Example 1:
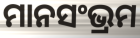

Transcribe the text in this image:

ମାନସଂଭ୍ରମ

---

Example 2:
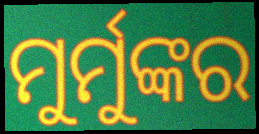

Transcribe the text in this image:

ମୁର୍ମୁଙ୍କର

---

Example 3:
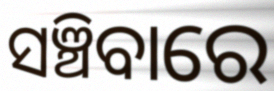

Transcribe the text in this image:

ସଞ୍ଚିବାରେ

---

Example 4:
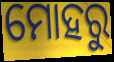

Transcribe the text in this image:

ମୋହରୁ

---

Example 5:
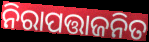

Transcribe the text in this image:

ନିରାପତ୍ତାଜନିତ